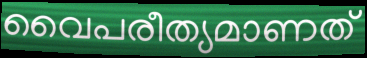
വൈപരീത്യമാണത്